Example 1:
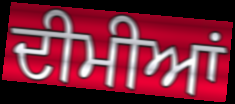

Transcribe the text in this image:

ਦੀਮੀਆਂ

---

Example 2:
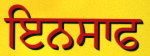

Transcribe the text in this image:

ਇਨਸਾਫ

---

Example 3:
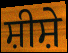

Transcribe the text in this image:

ਸ਼ੀਸ਼ੇ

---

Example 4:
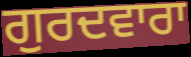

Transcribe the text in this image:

ਗੁਰਦਵਾਰਾ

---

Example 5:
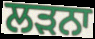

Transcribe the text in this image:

ਲੜਨਾ